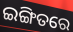
ଇଙ୍ଗିତରେ